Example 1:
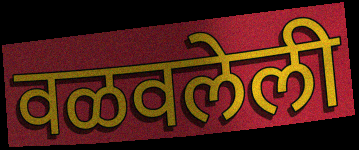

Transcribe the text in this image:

वळवलेली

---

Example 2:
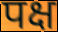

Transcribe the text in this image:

पक्ष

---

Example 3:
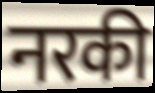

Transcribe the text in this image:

नरकी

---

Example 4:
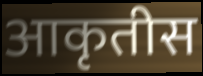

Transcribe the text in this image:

आकृतीस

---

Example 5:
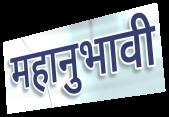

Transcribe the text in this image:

महानुभावी